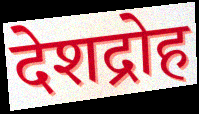
देशद्रोह